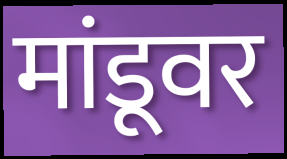
मांडूवर